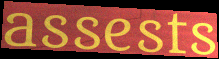
assests